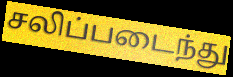
சலிப்படைந்து